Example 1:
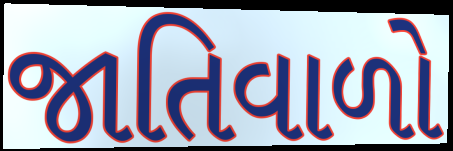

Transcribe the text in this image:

જાતિવાળો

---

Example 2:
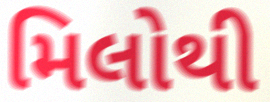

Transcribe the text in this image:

મિલોથી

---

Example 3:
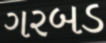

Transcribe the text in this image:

ગરબડ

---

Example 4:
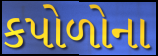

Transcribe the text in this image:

કપોળોના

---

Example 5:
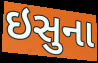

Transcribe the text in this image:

ઇસુના